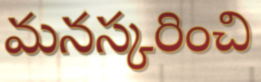
మనస్కరించి